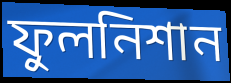
ফুলনিশান